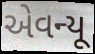
એવન્યૂ